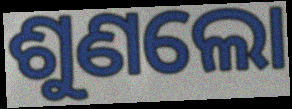
ଶୁଣଲୋ